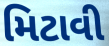
મિટાવી